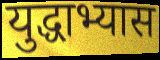
युद्धाभ्यास